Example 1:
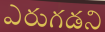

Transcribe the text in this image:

ఎరుగడని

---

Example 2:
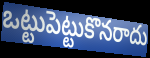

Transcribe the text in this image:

ఒట్టుపెట్టుకొనరాదు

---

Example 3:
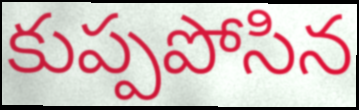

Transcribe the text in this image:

కుప్పపోసిన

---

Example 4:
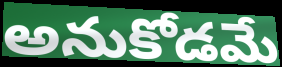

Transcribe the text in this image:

అనుకోడమే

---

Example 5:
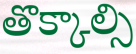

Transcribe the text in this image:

తొక్కాల్సి